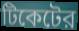
টিকেটের